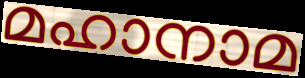
മഹാനാമ